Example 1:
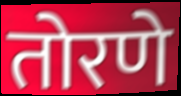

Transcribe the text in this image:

तोरणे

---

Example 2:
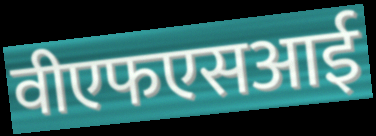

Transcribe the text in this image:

वीएफएसआई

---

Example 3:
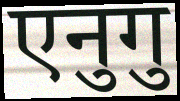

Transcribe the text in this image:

एनुगु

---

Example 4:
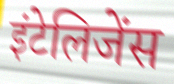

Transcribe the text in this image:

इंटेलिजेंस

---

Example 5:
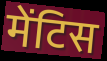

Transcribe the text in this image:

मेंटिस